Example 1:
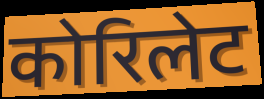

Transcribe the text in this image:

कोरिलेट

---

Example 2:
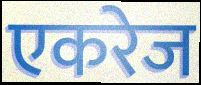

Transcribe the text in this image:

एकरेज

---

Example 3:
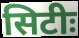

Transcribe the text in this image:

सिटीः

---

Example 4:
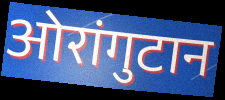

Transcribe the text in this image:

ओरांगुटान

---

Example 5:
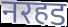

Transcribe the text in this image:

नरहड